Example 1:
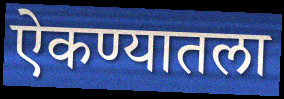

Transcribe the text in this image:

ऐकण्यातला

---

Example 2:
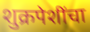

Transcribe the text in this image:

शुक्रपेशींचा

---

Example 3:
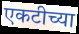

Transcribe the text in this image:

एकटीच्या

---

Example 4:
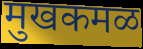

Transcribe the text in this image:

मुखकमळ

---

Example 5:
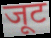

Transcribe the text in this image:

जूट